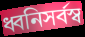
ধ্বনিসর্বস্ব